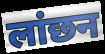
लांछन